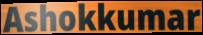
Ashokkumar